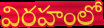
విరహంలో